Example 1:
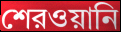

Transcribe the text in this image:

শেরওয়ানি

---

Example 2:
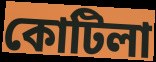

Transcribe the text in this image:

কোটিলা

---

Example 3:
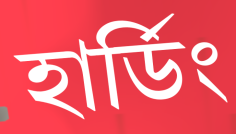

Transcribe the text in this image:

হার্ডিং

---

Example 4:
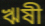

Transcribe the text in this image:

ঋষী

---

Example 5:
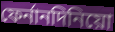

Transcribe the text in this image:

ফের্নানদিনিয়ো